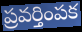
ప్రవర్తింపక